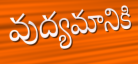
వుద్యమానికి